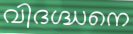
വിദഗ്ദ്ധനെ